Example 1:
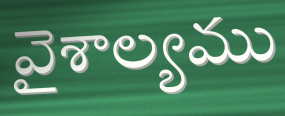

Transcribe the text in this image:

వైశాల్యము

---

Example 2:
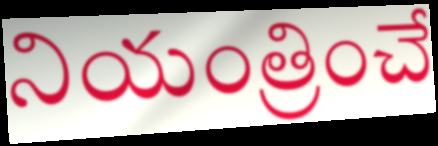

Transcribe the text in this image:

నియంత్రించే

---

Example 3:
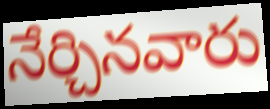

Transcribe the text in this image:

నేర్చినవారు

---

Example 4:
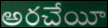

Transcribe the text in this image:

అరచేయీ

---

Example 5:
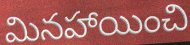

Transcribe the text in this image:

మినహాయించి